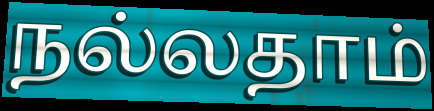
நல்லதாம்